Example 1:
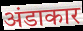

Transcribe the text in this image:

अंडाकार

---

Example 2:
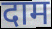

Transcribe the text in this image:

दाम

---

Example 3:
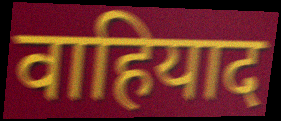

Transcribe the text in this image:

वाहियाद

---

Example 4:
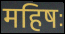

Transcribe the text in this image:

महिषः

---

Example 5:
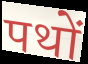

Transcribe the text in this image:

पथों